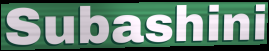
Subashini